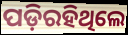
ପଡ଼ିରହିଥିଲେ